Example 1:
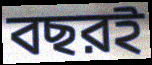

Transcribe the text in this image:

বছরই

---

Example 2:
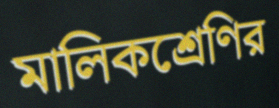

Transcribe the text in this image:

মালিকশ্রেণির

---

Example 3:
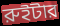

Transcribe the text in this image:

রুইটার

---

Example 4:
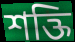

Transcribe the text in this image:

শক্তি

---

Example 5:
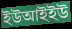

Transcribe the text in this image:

ইউআইইউ